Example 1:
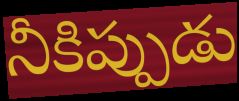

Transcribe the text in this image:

నీకిప్పుడు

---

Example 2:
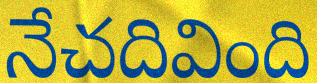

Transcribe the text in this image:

నేచదివింది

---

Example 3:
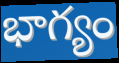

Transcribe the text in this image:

భాగ్యం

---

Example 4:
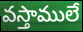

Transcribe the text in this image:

వస్తాములే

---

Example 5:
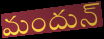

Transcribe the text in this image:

మందున్